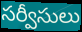
సర్వీసులు